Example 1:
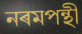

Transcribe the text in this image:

নৰমপন্থী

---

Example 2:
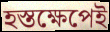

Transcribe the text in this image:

হস্তক্ষেপেই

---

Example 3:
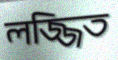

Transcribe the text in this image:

লজ্জিত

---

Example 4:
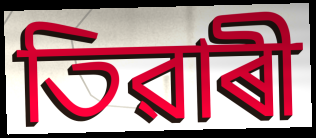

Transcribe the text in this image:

তিৱাৰী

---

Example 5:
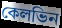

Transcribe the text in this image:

কেলভিন